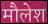
मौलेश